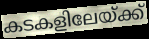
കടകളിലേയ്ക്ക്